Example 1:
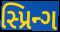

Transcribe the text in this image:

સ્પ્રિન્ગ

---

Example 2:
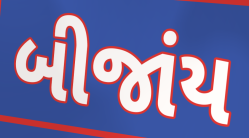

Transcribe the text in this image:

બીજાંય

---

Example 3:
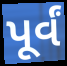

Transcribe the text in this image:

પૂર્વં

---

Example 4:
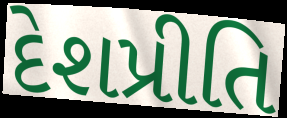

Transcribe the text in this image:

દેશપ્રીતિ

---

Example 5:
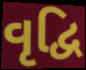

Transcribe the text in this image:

વૃદ્વિ